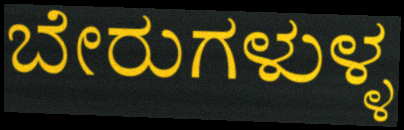
ಬೇರುಗಳುಳ್ಳ